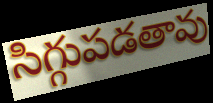
సిగ్గుపడతావు